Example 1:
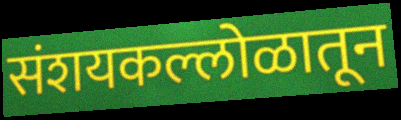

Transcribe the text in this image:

संशयकल्लोळातून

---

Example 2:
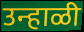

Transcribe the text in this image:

उन्हाळी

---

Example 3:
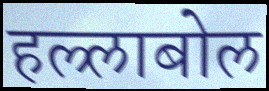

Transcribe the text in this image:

हल्लाबोल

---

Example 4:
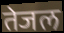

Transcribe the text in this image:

तेजल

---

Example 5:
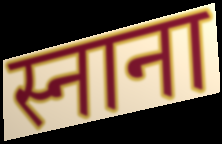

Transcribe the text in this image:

स्नाना